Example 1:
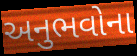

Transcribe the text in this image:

અનુભવોના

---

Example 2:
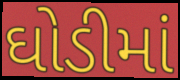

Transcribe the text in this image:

ઘોડીમાં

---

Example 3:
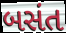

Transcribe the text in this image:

બસંત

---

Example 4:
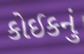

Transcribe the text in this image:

કોઈકનું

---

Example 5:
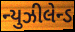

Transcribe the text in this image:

ન્યુઝીલેન્ડ